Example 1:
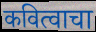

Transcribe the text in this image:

कवित्वाचा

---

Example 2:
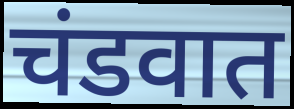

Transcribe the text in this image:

चंडवात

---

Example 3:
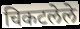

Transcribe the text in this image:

चिकटलेले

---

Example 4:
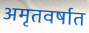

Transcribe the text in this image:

अमृतवर्षात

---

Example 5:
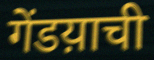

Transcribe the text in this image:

गेंडय़ाची